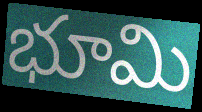
భూమి